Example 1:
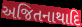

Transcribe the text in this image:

અજિતનાથાદિ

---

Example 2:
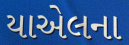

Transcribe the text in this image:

યાએલના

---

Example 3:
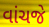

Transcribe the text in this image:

વાંચજે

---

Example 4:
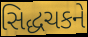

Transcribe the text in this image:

સિદ્ધચકને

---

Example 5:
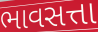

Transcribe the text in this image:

ભાવસત્તા